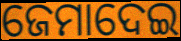
ଜେମାଦେଇ